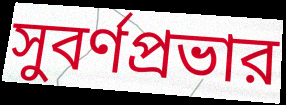
সুবর্ণপ্রভার